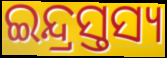
ଇନ୍ଦ୍ରସ୍ତସ୍ୟ